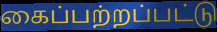
கைப்பற்றப்பட்டு